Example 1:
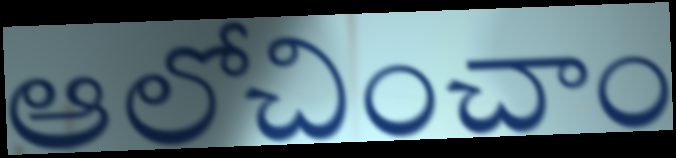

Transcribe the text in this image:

ఆలోచించాం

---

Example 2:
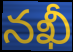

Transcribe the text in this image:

నఖీ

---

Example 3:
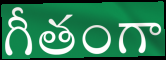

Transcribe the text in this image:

గీతంగా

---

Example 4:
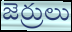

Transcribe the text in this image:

జెర్రులు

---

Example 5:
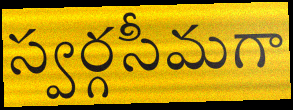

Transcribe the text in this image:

స్వర్గసీమగా